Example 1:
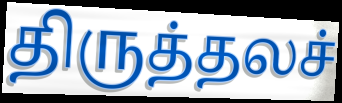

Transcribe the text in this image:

திருத்தலச்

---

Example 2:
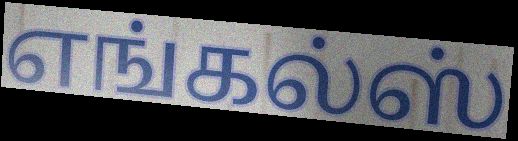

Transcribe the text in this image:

எங்கல்ஸ்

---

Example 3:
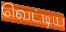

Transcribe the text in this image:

வெட்டிய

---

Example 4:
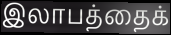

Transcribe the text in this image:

இலாபத்தைக்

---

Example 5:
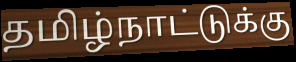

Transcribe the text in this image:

தமிழ்நாட்டுக்கு